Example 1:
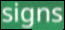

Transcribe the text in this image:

signs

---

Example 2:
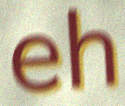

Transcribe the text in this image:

eh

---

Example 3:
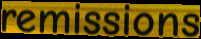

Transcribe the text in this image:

remissions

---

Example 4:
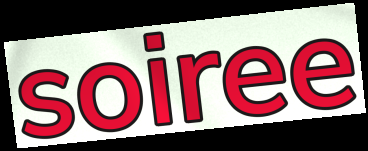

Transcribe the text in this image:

soiree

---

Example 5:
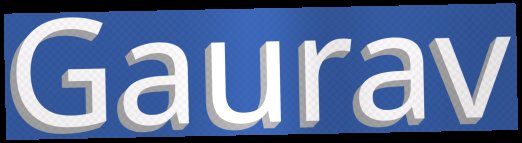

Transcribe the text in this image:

Gaurav